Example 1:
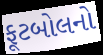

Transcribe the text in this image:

ફૂટબોલનો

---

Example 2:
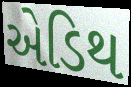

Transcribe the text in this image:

એડિથ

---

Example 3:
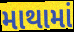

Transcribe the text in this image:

માથામાં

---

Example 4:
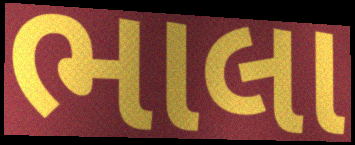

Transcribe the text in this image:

ભાલા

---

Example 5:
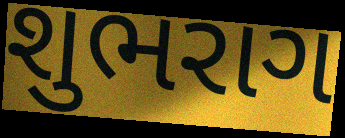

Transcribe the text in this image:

શુભરાગ